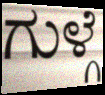
ಗುಳ್ಗೆ